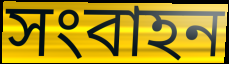
সংবাহন